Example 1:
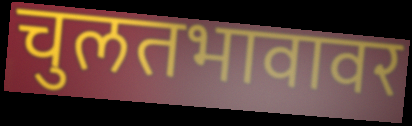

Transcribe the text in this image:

चुलतभावावर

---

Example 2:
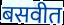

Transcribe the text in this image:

बसवीत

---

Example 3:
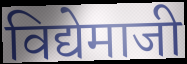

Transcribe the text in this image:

विद्येमाजी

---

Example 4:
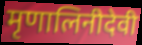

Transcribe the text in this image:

मृणालिनीदेवी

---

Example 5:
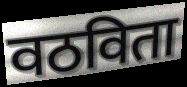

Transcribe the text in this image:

वठविता